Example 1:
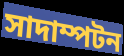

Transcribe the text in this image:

সাদাম্পটন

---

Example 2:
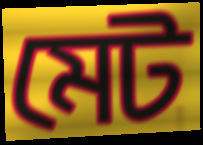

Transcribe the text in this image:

মেট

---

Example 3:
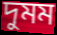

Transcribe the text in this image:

দুমম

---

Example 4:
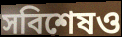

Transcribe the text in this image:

সবিশেষও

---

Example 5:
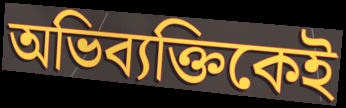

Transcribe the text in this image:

অভিব্যক্তিকেই